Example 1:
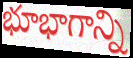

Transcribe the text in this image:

భూభాగాన్ని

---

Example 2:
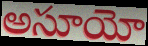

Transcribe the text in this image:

అసూయో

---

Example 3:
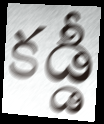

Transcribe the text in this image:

కడ్డీ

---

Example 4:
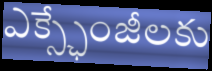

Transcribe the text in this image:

ఎక్స్ఛేంజీలకు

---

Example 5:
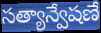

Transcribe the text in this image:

సత్యాన్వేషణే